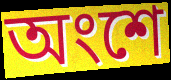
অংশে